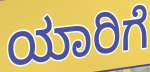
ಯಾರಿಗೆ